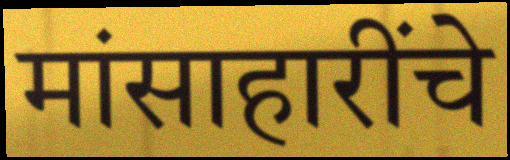
मांसाहारींचे